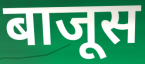
बाजूस